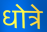
धोत्रे